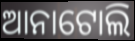
ଆନାଟୋଲି